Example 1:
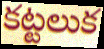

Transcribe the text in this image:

కట్టలుక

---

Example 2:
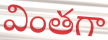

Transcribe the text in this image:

వింతగా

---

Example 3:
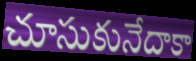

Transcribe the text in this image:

చూసుకునేదాకా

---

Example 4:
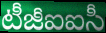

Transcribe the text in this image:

టీజీఐఐసీ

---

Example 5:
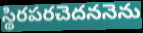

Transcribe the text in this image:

స్థిరపరచెదననెను